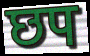
छप